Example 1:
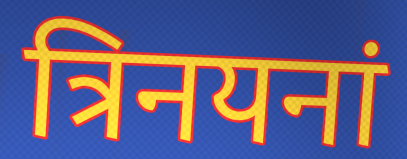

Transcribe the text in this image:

त्रिनयनां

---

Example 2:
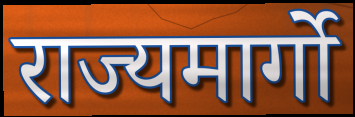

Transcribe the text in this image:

राज्यमार्गो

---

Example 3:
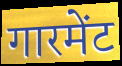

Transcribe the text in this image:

गारमेंट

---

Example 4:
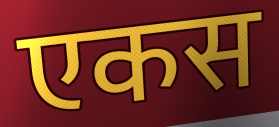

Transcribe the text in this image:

एकस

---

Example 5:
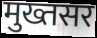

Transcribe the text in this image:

मुख्तसर